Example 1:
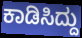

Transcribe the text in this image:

ಕಾಡಿಸಿದ್ದು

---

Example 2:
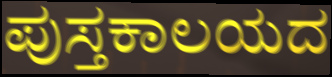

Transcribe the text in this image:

ಪುಸ್ತಕಾಲಯದ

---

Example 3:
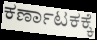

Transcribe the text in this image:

ಕರ್ಣಾಟಕಕ್ಕೆ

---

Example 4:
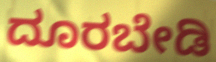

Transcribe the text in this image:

ದೂರಬೇಡಿ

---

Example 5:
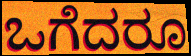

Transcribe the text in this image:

ಒಗೆದರೂ